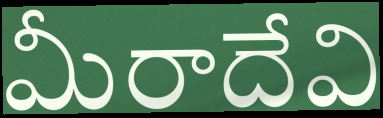
మీరాదేవి